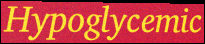
Hypoglycemic